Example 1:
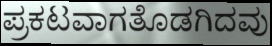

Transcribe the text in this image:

ಪ್ರಕಟವಾಗತೊಡಗಿದವು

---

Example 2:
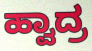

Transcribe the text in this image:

ಹ್ವಾದ್ರ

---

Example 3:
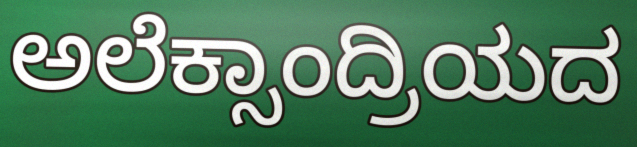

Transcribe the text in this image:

ಅಲೆಕ್ಸಾಂದ್ರಿಯದ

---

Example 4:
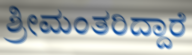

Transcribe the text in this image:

ಶ್ರೀಮಂತರಿದ್ದಾರೆ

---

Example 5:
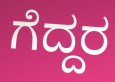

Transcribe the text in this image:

ಗೆದ್ದರ